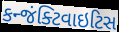
કન્જંક્ટિવાઇટિસ